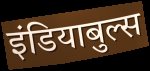
इंडियाबुल्स